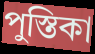
পুস্তিকা